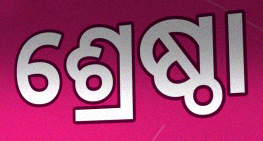
ଶ୍ରେଷ୍ଠା